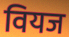
वियज